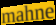
mahne